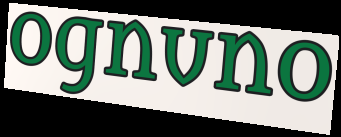
ognuno